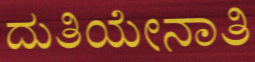
ದುತಿಯೇನಾತಿ